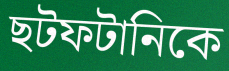
ছটফটানিকে